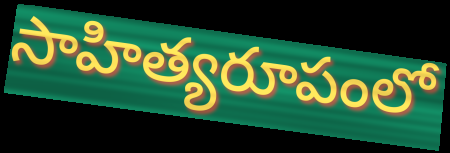
సాహిత్యరూపంలో